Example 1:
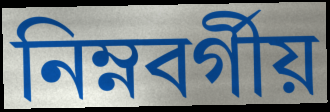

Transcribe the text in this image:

নিম্নবর্গীয়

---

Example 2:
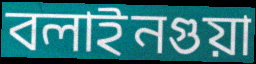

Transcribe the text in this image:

বলাইনগুয়া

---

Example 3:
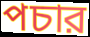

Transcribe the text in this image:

পচার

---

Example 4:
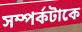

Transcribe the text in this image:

সম্পর্কটাকে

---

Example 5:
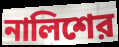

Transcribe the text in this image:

নালিশের